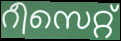
റീസെറ്റ്